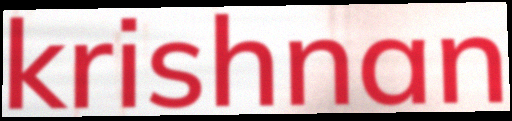
krishnan